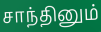
சாந்தினும்